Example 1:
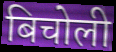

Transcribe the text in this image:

बिचोली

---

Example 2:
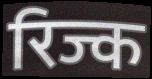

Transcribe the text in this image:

रिज्क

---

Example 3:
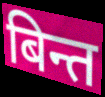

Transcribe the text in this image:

बिन्त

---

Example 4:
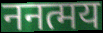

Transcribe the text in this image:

ननत्मय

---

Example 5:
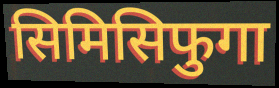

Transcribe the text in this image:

सिमिसिफुगा